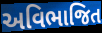
અવિભાજિત